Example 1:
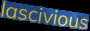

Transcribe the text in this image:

lascivious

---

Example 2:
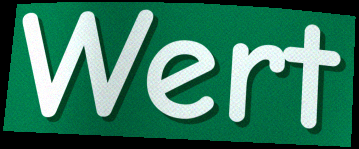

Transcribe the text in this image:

Wert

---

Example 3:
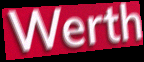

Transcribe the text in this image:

Werth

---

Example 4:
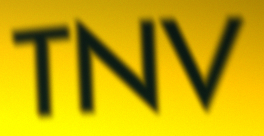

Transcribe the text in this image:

TNV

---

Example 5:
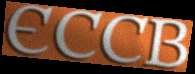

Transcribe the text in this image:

ECCB